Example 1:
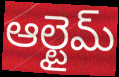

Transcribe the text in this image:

ఆల్టైమ్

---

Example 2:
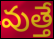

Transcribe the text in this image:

వుత్తే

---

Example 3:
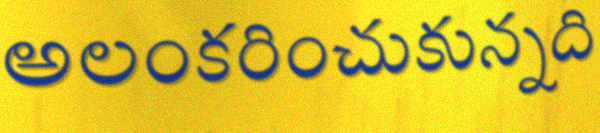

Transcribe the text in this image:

అలంకరించుకున్నది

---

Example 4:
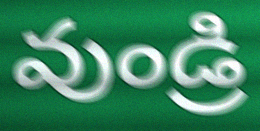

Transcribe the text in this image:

వుండ్రి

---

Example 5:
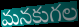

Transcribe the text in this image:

మనకుగల